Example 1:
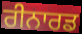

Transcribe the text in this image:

ਰੀਨਾਰਡ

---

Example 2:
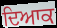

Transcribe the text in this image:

ਦਿਆਕ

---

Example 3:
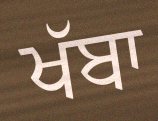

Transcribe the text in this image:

ਖੱਬਾ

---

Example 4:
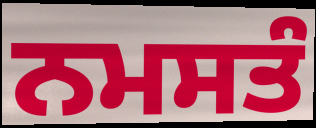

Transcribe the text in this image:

ਨਮਸਤੰ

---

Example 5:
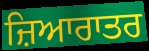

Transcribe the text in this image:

ਜ਼ਿਆਰਾਤਰ